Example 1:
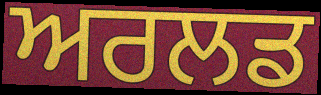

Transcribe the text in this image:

ਅਰਲਡ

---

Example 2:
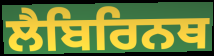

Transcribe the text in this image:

ਲੈਬਿਰਿਨਥ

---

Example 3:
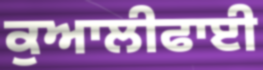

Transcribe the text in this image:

ਕੁਆਲੀਫਾਈ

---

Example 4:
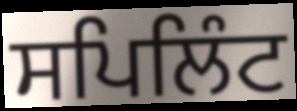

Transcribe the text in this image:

ਸਪਿਲਿੰਟ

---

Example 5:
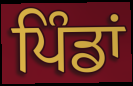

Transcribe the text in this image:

ਪਿੰਡਾਂ